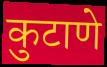
कुटाणे